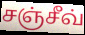
சஞ்சீவ்